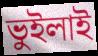
ভুইলাই